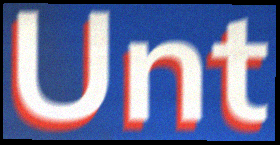
Unt